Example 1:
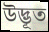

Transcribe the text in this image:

উদ্ভূত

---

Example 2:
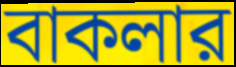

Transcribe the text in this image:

বাকলার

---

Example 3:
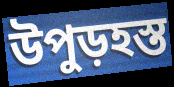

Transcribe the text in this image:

উপুড়হস্ত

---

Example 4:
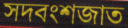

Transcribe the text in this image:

সদবংশজাত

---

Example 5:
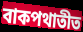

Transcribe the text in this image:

বাকপথাতীত